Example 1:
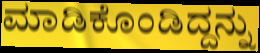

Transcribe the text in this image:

ಮಾಡಿಕೊಂಡಿದ್ದನ್ನು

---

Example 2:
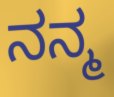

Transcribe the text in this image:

ನನ್ಮ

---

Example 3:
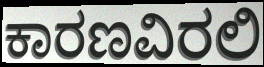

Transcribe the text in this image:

ಕಾರಣವಿರಲಿ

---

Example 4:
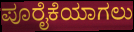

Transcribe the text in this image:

ಪೂರೈಕೆಯಾಗಲು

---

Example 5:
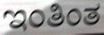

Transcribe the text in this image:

ಇಂತಿಂತ